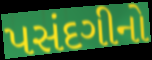
પસંદગીનો